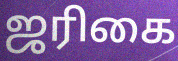
ஜரிகை